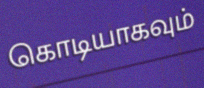
கொடியாகவும்